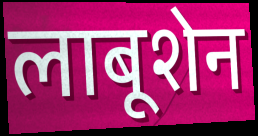
लाबूशेन